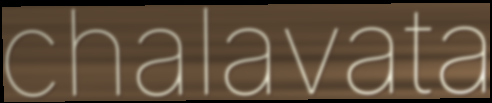
chalavata